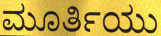
ಮೂರ್ತಿಯು